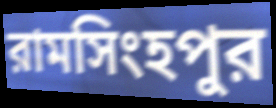
রামসিংহপুর